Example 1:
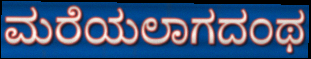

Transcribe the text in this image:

ಮರೆಯಲಾಗದಂಥ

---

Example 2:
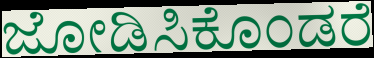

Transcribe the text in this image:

ಜೋಡಿಸಿಕೊಂಡರೆ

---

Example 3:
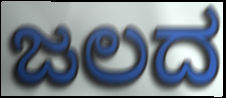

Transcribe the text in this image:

ಜಲದ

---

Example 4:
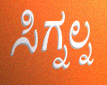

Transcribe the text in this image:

ಸಿಗ್ನಲ್ನ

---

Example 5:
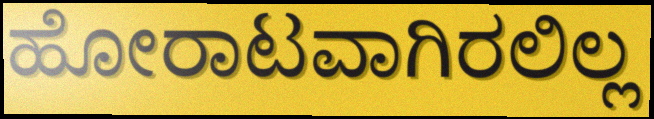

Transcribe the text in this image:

ಹೋರಾಟವಾಗಿರಲಿಲ್ಲ